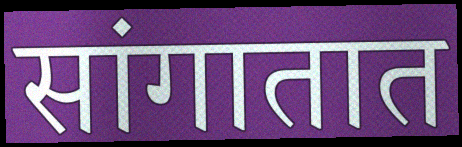
सांगातात